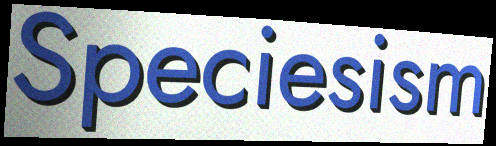
Speciesism